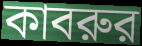
কাবরুর